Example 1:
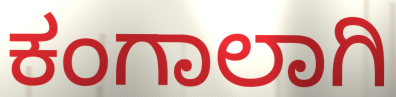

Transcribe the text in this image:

ಕಂಗಾಲಾಗಿ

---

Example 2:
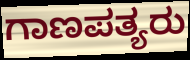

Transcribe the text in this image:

ಗಾಣಪತ್ಯರು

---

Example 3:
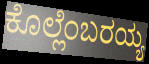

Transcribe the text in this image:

ಕೊಲ್ಲೆಂಬರಯ್ಯ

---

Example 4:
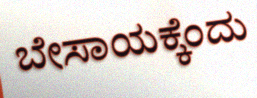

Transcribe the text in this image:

ಬೇಸಾಯಕ್ಕೆಂದು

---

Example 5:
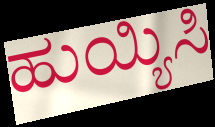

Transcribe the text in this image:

ಹುಯ್ಯಿಸಿ